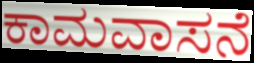
ಕಾಮವಾಸನೆ